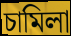
চামিলা